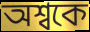
অশ্বকে